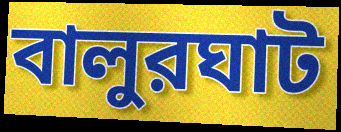
বালুরঘাট